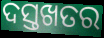
ଦସ୍ତଖତର